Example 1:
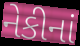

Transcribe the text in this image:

નેકીનાં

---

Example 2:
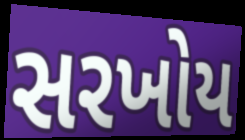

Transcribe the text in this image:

સરખોય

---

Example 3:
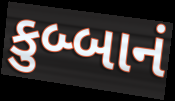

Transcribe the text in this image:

કુબ્બાનં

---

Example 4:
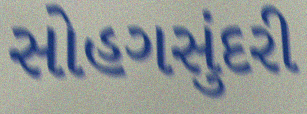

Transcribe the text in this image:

સોહગસુંદરી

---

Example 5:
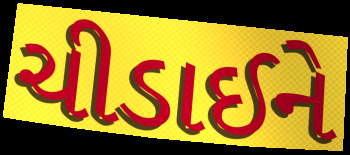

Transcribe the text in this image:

ચીડાઈને